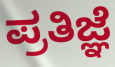
ಪ್ರತಿಜ್ಞೆ